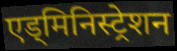
एड्मिनिस्ट्रेशन